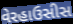
વેરહાઉસીસ